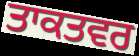
ਤਾਕਤਵਰ